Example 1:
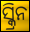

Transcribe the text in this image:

ସ୍କ୍ରିନ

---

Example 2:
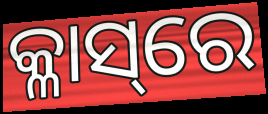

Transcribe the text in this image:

କ୍ଳାସ୍‌ରେ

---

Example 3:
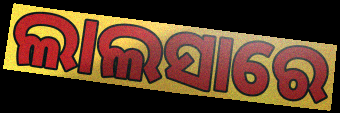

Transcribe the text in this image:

ଲାଲସାରେ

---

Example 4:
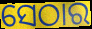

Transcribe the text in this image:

ସେଠାର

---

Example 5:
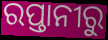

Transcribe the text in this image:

ରପ୍ତାନୀରୁ